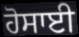
ਹੋਸਾਈ